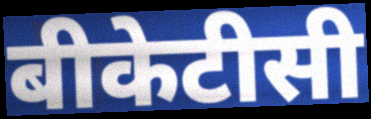
बीकेटीसी